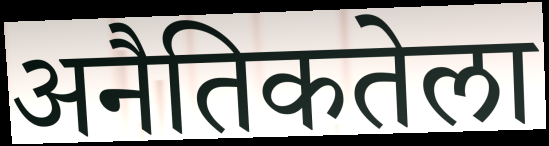
अनैतिकतेला